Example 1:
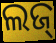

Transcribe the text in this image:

ଲଜ୍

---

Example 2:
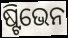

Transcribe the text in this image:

ଷ୍ଟିଭେନ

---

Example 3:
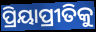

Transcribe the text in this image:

ପ୍ରିୟାପ୍ରୀତିକୁ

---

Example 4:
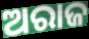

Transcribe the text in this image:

ଅରାଜ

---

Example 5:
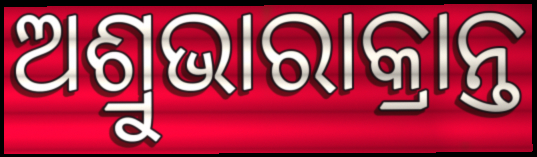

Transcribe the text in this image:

ଅଶ୍ରୁଭାରାକ୍ରାନ୍ତ